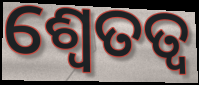
ଶ୍ୱେତତ୍ଵ